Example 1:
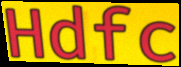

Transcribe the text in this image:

Hdfc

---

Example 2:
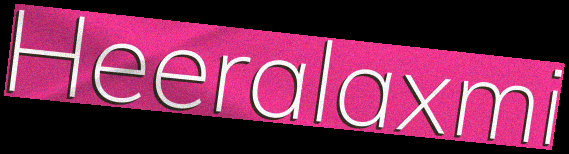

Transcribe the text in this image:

Heeralaxmi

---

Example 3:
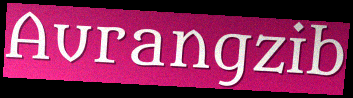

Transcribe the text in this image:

Aurangzib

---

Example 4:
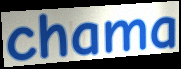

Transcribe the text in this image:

chama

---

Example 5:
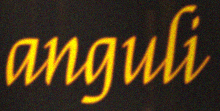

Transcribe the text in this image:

anguli